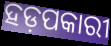
ହଡ଼ପକାରୀ